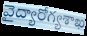
వైద్యారోగ్యశాఖ